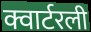
क्वार्टरली